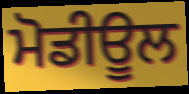
ਮੋਡੀਊਲ